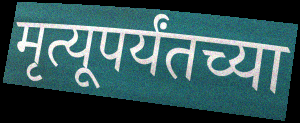
मृत्यूपर्यंतच्या